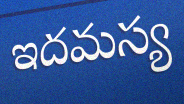
ఇదమస్య